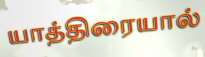
யாத்திரையால்